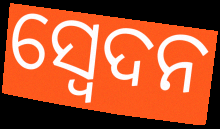
ସ୍ଵେଦନ